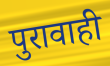
पुरावाही